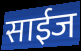
साईज